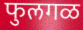
फुलगळ